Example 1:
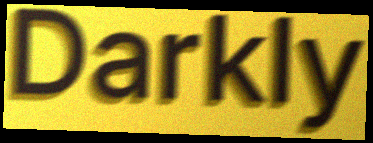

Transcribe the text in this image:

Darkly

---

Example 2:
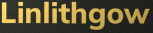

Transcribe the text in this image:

Linlithgow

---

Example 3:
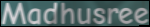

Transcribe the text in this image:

Madhusree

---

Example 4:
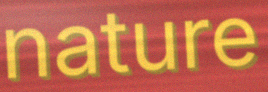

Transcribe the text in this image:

nature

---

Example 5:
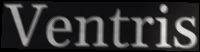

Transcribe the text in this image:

Ventris